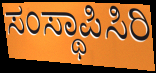
ಸಂಸ್ಥಾಪಿಸಿರಿ